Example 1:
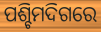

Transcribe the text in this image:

ପଶ୍ଚିମଦିଗରେ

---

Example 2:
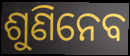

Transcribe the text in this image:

ଶୁଣିନେବ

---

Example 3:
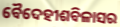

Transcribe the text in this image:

ବୈଦେହୀଶବିଳାସର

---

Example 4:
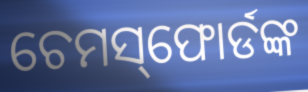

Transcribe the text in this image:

ଚେମସ୍‌ଫୋର୍ଡଙ୍କ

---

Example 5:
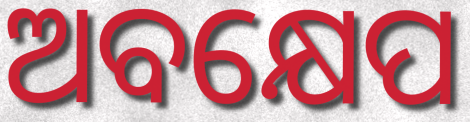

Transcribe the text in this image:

ଅବକ୍ଷେପ